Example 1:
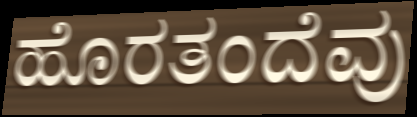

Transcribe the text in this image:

ಹೊರತಂದೆವು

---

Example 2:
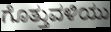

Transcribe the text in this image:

ಗೊತ್ತುವಳಿಯು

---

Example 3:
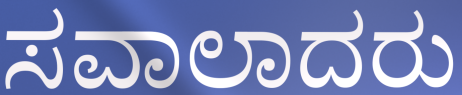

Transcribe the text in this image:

ಸವಾಲಾದರು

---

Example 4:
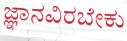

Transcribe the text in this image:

ಜ್ಞಾನವಿರಬೇಕು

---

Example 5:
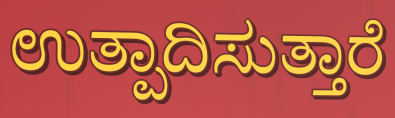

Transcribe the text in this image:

ಉತ್ಪಾದಿಸುತ್ತಾರೆ